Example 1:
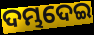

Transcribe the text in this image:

ଦମ୍ଭଦେଇ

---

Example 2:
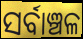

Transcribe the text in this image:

ସର୍ବାଞ୍ଚଳ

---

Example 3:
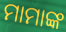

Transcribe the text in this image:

ମାମାଙ୍କ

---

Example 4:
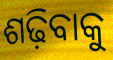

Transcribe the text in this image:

ଶଢ଼ିବାକୁ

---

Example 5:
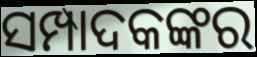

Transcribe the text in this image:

ସମ୍ପାଦକଙ୍କର